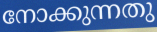
നോക്കുന്നതു